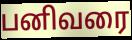
பனிவரை